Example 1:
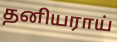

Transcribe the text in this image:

தனியராய்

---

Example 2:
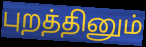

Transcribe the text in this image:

புறத்தினும்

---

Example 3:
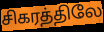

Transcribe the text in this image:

சிகரத்திலே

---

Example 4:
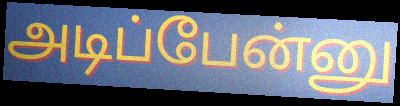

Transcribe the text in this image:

அடிப்பேன்னு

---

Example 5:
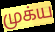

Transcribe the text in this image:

முக்ய